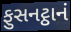
ફુસનટ્ઠાનં